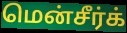
மென்சீர்க்